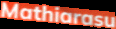
Mathiarasu